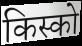
किस्को